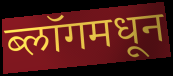
ब्लॉगमधून